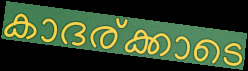
കാദര്ക്കാടെ